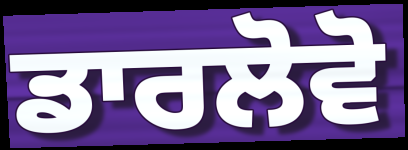
ਡਾਰਲੋਵੋ